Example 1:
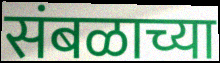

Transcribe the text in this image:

संबळाच्या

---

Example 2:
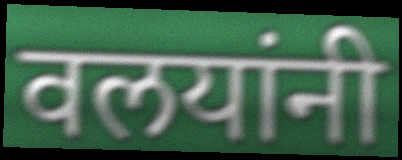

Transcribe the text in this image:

वलयांनी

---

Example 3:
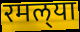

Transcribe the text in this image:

रमल्या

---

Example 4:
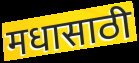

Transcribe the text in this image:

मधासाठी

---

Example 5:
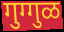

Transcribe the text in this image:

गुग्गुळ